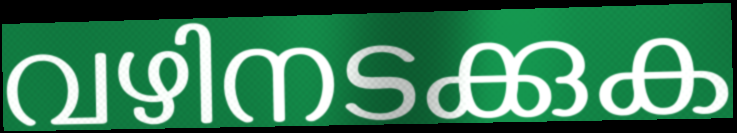
വഴിനടക്കുക